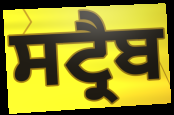
ਸਟ੍ਰੈਬ